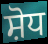
ਸ਼ੋਧ